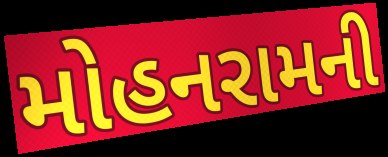
મોહનરામની